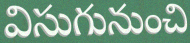
విసుగునుంచి